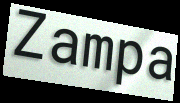
Zampa